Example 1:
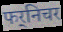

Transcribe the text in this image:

फर्निचर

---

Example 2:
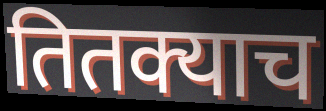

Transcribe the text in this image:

तितक्‍याच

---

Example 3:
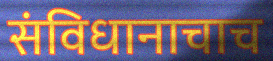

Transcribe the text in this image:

संविधानाचाच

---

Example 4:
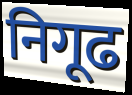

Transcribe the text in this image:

निगूढ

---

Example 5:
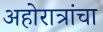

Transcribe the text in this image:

अहोरात्रांचा